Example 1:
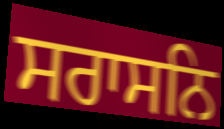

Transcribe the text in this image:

ਸਰਾਸਨਿ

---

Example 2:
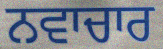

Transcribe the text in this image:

ਨਵਾਚਾਰ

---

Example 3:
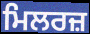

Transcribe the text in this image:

ਮਿਲਰਜ਼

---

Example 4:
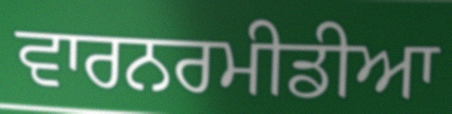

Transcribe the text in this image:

ਵਾਰਨਰਮੀਡੀਆ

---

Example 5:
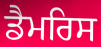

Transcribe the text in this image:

ਡੈਮਰਿਸ